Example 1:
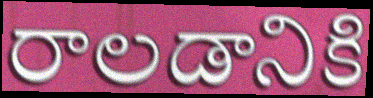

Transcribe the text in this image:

రాలడానికి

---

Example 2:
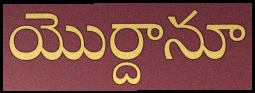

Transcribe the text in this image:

యొర్దానూ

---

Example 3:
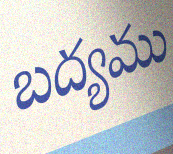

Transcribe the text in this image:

బద్యము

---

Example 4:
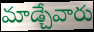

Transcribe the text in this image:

మాడ్చేవారు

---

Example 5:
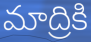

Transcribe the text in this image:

మాద్రికి